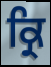
ਕ੍ਰਿ